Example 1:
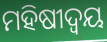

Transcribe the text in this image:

ମହିଷୀଦ୍ୱୟ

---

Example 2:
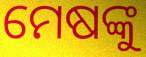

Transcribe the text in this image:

ମେଷଙ୍କୁ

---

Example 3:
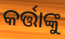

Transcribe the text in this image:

କର୍ତ୍ତାଙ୍କୁ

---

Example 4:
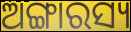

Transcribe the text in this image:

ଅଙ୍ଗାରସ୍ୟ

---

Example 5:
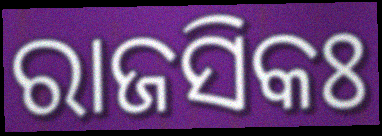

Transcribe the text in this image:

ରାଜସିକଃ